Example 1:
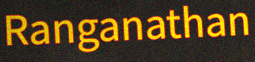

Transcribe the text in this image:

Ranganathan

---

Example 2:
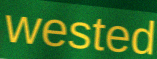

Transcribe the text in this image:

wested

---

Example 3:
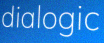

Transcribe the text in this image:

dialogic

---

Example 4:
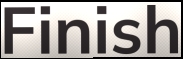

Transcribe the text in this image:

Finish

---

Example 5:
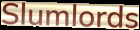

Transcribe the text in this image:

Slumlords